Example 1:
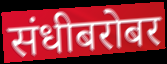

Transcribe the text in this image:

संधीबरोबर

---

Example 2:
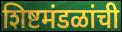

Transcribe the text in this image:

शिष्टमंडळांची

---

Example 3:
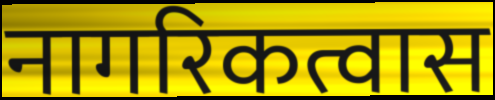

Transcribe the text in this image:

नागरिकत्वास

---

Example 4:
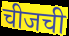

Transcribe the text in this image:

चीजची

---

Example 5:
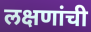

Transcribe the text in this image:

लक्षणांची